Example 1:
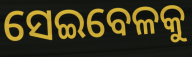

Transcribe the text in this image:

ସେଇବେଳକୁ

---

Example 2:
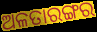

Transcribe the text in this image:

ଅଳତାରଙ୍ଗର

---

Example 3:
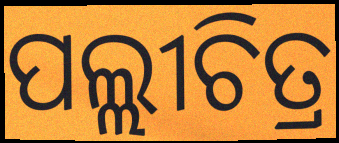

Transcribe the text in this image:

ପଲ୍ଲୀଚିତ୍ର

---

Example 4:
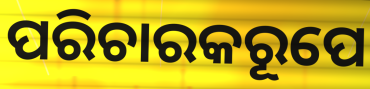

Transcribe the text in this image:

ପରିଚାରକରୂପେ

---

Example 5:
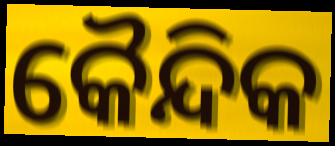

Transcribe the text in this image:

କୈନ୍ଦିକ